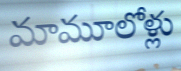
మామూలోళ్లు